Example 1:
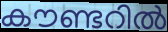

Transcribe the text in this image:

കൗണ്ടറിൽ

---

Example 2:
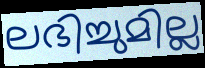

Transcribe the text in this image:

ലഭിച്ചുമില്ല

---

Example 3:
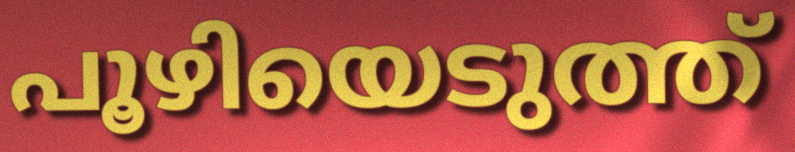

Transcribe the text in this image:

പൂഴിയെടുത്ത്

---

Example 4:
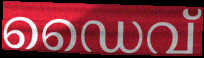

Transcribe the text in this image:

ഡൈവ്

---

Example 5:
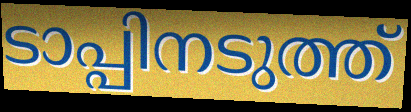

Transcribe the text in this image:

ടാപ്പിനടുത്ത്